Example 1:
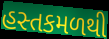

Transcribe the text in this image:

હસ્તકમળથી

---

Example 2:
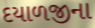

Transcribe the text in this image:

દયાળજીના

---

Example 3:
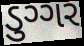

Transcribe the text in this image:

ડુગ્ગર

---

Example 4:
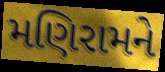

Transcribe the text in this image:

મણિરામને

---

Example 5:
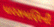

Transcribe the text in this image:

પારસમણિની